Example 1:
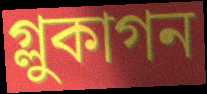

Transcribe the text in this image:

গ্লুকাগন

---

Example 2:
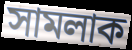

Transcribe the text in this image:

সামলাক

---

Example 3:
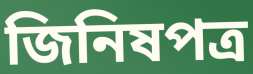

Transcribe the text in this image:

জিনিষপত্র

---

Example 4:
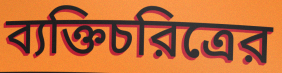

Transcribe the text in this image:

ব্যক্তিচরিত্রের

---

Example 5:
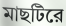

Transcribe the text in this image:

মাছটিরে